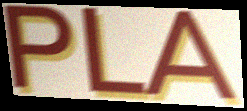
PLA